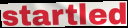
startled